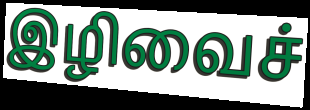
இழிவைச்